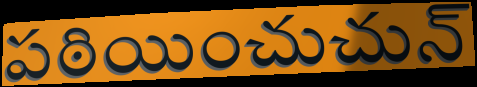
పఠియించుచున్